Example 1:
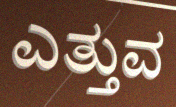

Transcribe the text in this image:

ಎತ್ತುವ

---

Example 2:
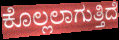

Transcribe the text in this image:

ಕೊಲ್ಲಲಾಗುತ್ತಿದೆ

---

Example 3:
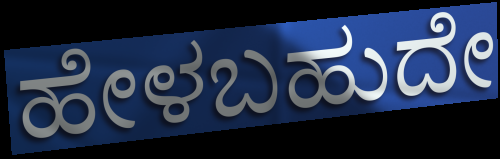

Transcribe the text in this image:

ಹೇಳಬಹುದೇ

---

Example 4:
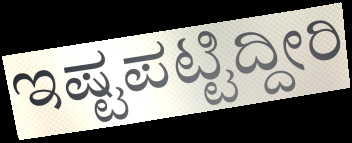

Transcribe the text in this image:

ಇಷ್ಟಪಟ್ಟಿದ್ದೀರಿ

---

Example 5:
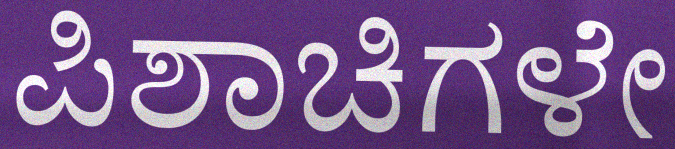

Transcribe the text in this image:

ಪಿಶಾಚಿಗಳೇ